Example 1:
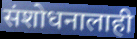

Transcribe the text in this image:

संशोधनालाही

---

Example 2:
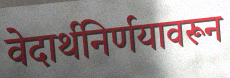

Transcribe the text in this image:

वेदार्थनिर्णयावरून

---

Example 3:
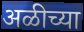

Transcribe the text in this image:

अळीच्या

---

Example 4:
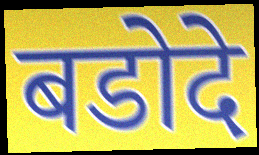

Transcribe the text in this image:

बडोदे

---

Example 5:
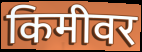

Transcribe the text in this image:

किमीवर